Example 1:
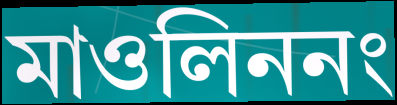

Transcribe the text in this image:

মাওলিননং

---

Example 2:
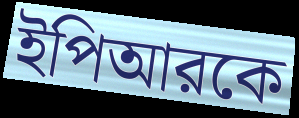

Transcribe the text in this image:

ইপিআরকে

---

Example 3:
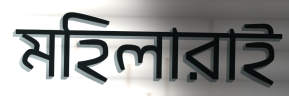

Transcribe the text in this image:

মহিলারাই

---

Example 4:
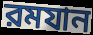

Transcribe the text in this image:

রমযান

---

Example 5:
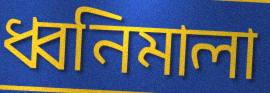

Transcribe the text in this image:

ধ্বনিমালা